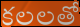
కలలతో